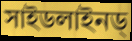
সাইডলাইনড্